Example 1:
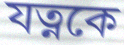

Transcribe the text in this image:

যত্নকে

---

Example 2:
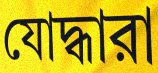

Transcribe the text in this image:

যোদ্ধারা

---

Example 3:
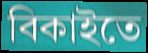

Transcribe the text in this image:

বিকাইতে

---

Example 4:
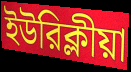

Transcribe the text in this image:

ইউরিক্লীয়া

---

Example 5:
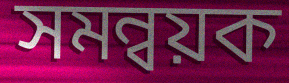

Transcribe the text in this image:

সমন্বয়ক